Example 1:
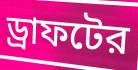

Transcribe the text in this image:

ড্রাফটের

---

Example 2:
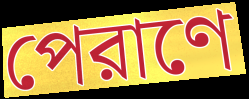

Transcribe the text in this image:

পেরাণে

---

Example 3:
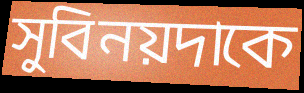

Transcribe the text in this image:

সুবিনয়দাকে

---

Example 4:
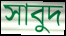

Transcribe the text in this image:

সাবুদ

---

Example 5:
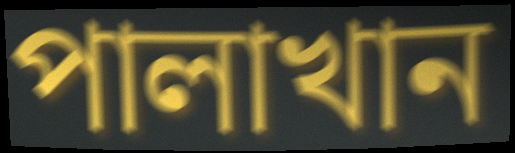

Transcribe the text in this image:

পালাখান